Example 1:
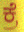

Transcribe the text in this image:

ಕ್ರೆ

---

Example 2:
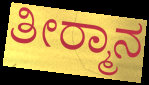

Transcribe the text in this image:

ತೀರ‍್ಮಾನ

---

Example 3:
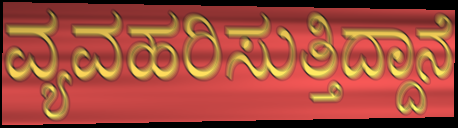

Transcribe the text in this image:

ವ್ಯವಹರಿಸುತ್ತಿದ್ದಾನೆ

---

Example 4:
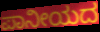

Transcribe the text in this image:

ಪಾನೀಯದ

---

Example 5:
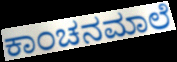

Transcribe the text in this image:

ಕಾಂಚನಮಾಲೆ